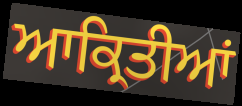
ਆਕ੍ਰਿਤੀਆਂ